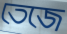
তেজে